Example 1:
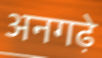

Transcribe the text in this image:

अनगढ़े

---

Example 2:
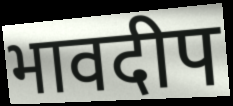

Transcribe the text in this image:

भावदीप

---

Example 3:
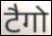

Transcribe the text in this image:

टैगो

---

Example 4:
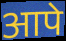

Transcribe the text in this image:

आपे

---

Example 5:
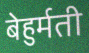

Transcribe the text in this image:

बेहुर्मती